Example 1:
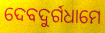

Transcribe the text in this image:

ଦେବଦୁର୍ଗଧାମେ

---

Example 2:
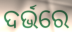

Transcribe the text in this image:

ଦର୍ଭରେ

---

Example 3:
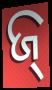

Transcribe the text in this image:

ଜ୍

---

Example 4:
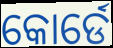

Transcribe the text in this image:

କୋର୍ଡେ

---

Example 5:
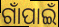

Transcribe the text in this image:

ଗାଁପାଇଁ